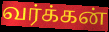
வர்க்கன்